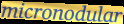
micronodular